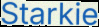
Starkie